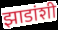
झाडांशी